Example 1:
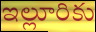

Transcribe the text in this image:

ఇల్లూరికు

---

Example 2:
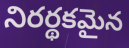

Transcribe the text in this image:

నిరర్థకమైన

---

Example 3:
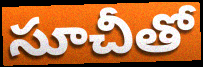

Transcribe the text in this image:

సూచీతో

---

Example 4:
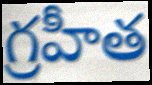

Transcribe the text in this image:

గ్రహీత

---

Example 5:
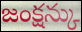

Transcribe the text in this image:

జంక్షన్కు